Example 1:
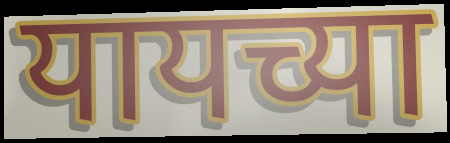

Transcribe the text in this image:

यायच्या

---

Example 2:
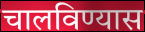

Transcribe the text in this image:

चालविण्यास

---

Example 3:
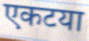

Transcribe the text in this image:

एकटया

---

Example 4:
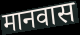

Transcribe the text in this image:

मानवास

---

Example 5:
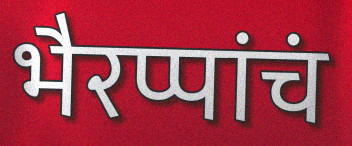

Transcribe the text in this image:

भैरप्पांचं